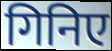
गिनिए